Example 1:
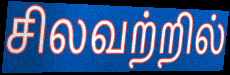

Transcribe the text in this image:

சிலவற்றில்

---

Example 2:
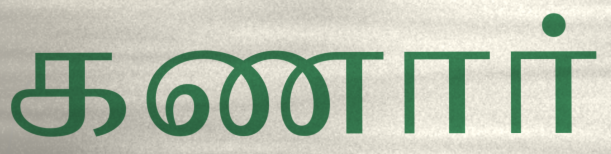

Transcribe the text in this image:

கணார்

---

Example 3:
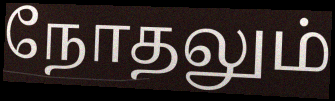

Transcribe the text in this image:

நோதலும்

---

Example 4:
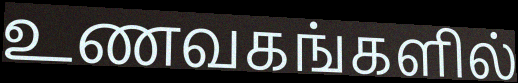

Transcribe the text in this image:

உணவகங்களில்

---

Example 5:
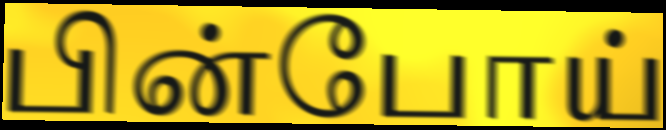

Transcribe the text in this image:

பின்போய்